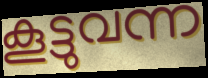
കൂട്ടുവന്ന